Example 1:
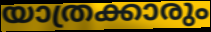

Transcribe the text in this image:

യാത്രക്കാരും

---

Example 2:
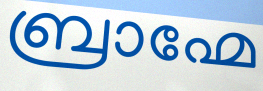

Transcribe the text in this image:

ബ്രാഹ്മേ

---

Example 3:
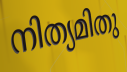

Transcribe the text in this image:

നിത്യമിതു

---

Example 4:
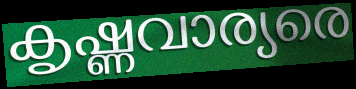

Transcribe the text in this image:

കൃഷ്ണവാര്യരെ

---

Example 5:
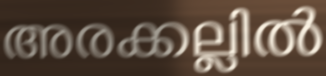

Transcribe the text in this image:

അരക്കല്ലിൽ